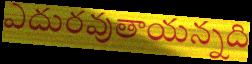
ఎదురవుతాయన్నది